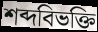
শব্দবিভক্তি